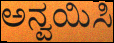
ಅನ್ವಯಿಸಿ